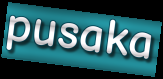
pusaka